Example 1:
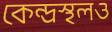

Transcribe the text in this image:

কেন্দ্রস্থলও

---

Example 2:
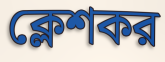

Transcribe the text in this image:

ক্লেশকর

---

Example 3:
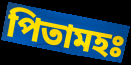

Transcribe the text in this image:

পিতামহঃ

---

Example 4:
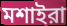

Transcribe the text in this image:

মশাইরা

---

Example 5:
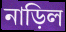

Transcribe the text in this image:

নাড়িল